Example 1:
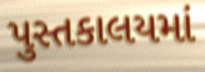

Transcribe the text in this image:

પુસ્તકાલયમાં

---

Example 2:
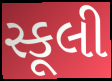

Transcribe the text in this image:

સ્કૂલી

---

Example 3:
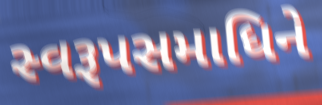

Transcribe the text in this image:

સ્વરૂપસમાધિને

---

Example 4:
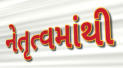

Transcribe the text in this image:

નેતૃત્વમાંથી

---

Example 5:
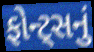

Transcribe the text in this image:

ફોન્ટ્સનું